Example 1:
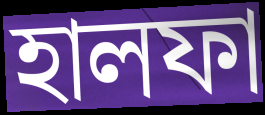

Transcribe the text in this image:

হালফা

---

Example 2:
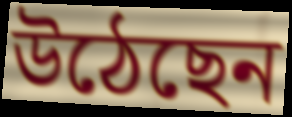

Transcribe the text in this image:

উঠেছেন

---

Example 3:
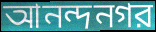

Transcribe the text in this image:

আনন্দনগর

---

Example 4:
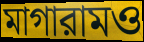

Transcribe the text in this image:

মাগারামও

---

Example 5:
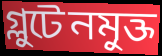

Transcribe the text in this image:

গ্লুটেনমুক্ত